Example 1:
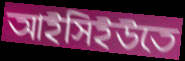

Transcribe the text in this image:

আইসিইউতে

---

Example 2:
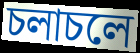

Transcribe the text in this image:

চলাচলে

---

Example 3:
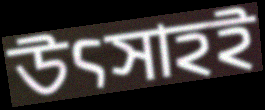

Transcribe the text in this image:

উৎসাহই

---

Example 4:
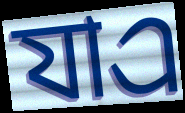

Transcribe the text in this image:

যাএ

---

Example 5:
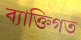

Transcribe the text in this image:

ব্যাক্তিগত